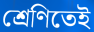
শ্রেণিতেই